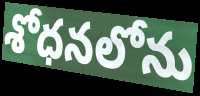
శోధనలోను